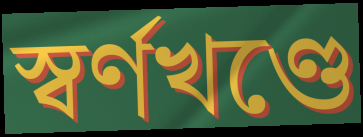
স্বর্ণখণ্ডে